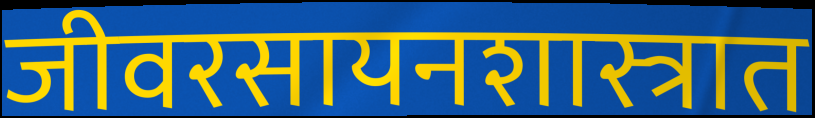
जीवरसायनशास्त्रात